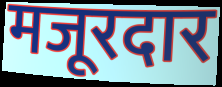
मजूरदार